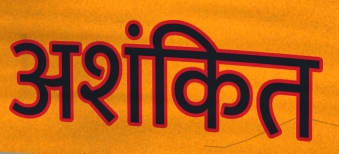
अशंकित